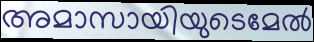
അമാസായിയുടെമേൽ